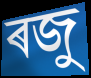
ৰজু